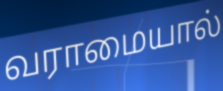
வராமையால்